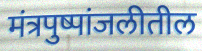
मंत्रपुष्पांजलीतील